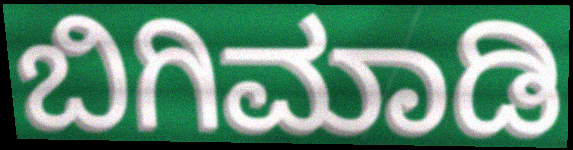
ಬಿಗಿಮಾಡಿ